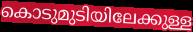
കൊടുമുടിയിലേക്കുള്ള